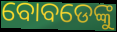
ବୋବଡେଙ୍କୁ